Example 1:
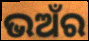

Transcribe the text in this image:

ଭଅଁର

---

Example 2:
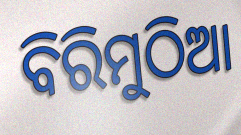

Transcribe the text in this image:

ବିରିମୁଠିଆ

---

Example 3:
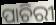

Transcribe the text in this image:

ପାଚିରୀ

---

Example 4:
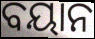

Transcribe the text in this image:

ବୟାନ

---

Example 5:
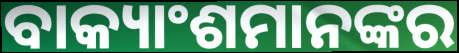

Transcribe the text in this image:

ବାକ୍ୟାଂଶମାନଙ୍କର